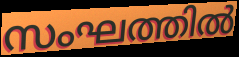
സംഘത്തിൽ